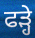
ਫੜ੍ਹੇ